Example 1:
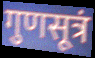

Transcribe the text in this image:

गुणसूत्रं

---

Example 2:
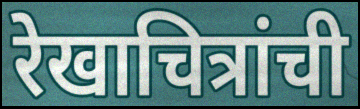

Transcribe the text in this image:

रेखाचित्रांची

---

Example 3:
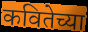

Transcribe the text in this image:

कवितेच्या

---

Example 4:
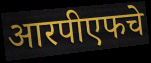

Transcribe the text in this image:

आरपीएफचे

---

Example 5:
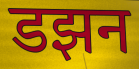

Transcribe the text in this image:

डझन